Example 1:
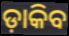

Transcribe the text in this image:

ଡ଼ାକିବ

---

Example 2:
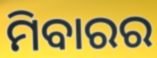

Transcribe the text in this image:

ମିବାରର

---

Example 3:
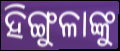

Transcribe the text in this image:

ହିଙ୍ଗୁଳାଙ୍କୁ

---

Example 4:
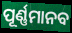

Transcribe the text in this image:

ପୂର୍ଣ୍ଣମାନବ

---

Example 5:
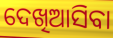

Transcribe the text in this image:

ଦେଖିଆସିବା